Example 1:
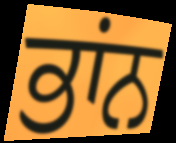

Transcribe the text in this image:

ਭਾਂਨ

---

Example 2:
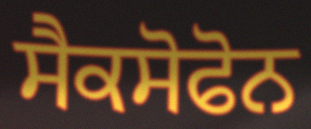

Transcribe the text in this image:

ਸੈਕਸੋਫੋਨ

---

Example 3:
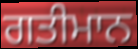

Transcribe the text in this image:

ਗਤੀਮਾਨ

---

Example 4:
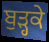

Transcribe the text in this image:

ਬੁੜ੍ਹਕੇ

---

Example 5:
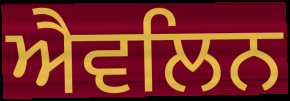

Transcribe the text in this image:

ਐਵਲਿਨ